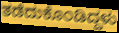
ತಡೆದುಕೊಂಡಿದ್ದಳು